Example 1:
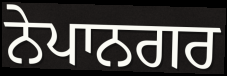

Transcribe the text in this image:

ਨੇਪਾਨਗਰ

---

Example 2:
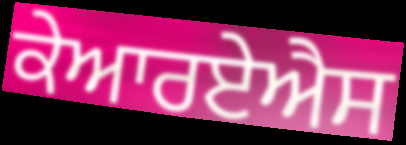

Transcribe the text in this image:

ਕੇਆਰਏਐਸ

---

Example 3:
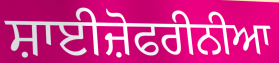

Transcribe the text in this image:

ਸ਼ਾਈਜ਼ੋਫਰੀਨੀਆ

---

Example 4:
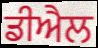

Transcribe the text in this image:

ਡੀਐਲ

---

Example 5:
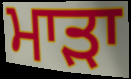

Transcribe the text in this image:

ਮਾਡ਼ਾ